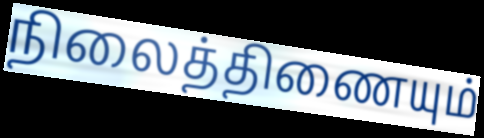
நிலைத்திணையும்